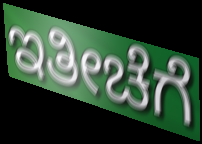
ಇತೀಚೆಗೆ